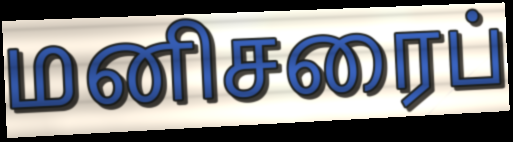
மனிசரைப்